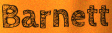
Barnett